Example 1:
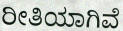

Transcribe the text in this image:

ರೀತಿಯಾಗಿವೆ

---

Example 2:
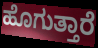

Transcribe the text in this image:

ಹೊಗುತ್ತಾರೆ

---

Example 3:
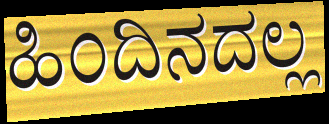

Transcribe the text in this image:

ಹಿಂದಿನದಲ್ಲ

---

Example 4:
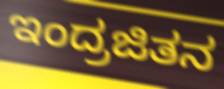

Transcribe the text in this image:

ಇಂದ್ರಜಿತನ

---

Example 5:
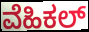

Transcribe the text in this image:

ವೆಹಿಕಲ್